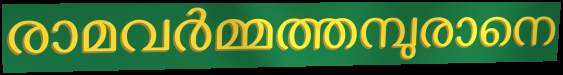
രാമവർമ്മത്തമ്പുരാനെ